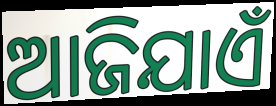
ଆଜିଯାଏଁ